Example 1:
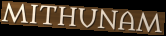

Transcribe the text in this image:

MITHUNAM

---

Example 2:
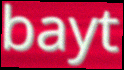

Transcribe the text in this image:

bayt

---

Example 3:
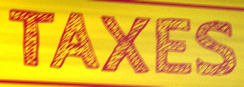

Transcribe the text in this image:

TAXES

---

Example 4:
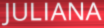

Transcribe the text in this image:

JULIANA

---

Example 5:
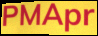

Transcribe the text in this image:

PMApr